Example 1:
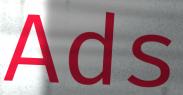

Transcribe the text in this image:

Ads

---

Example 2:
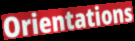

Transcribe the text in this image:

Orientations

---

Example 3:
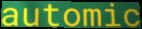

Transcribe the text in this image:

automic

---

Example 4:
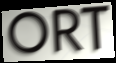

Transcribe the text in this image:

ORT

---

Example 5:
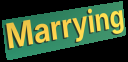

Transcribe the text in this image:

Marrying